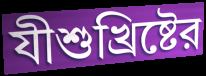
যীশুখ্রিষ্টের